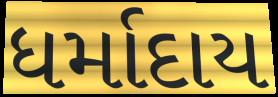
ધર્માદાય